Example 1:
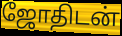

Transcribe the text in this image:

ஜோதிடன்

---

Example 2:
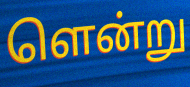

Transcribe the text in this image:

ளென்று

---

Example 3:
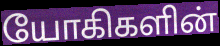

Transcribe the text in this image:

யோகிகளின்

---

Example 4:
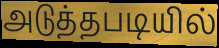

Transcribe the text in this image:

அடுத்தபடியில்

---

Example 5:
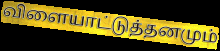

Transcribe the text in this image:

விளையாட்டுத்தனமும்